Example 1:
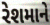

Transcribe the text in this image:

રેશમાને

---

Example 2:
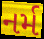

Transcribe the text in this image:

નર્મ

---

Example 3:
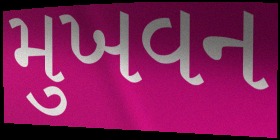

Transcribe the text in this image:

મુખવન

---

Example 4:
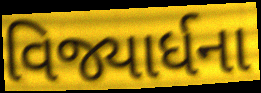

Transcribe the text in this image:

વિજ્યાર્ધના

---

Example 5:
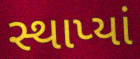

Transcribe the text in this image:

સ્થાપ્યાં